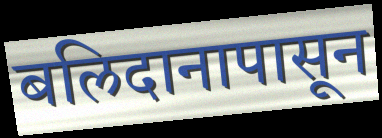
बलिदानापासून